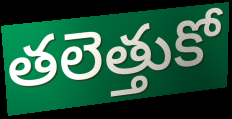
తలెత్తుకో